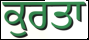
ਕੁਰਤਾ